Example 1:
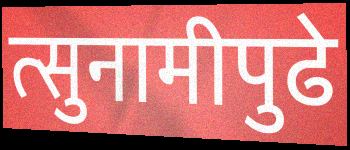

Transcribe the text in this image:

त्सुनामीपुढे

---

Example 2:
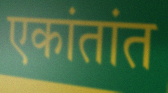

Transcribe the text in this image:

एकांतांत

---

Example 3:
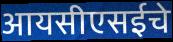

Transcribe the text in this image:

आयसीएसईचे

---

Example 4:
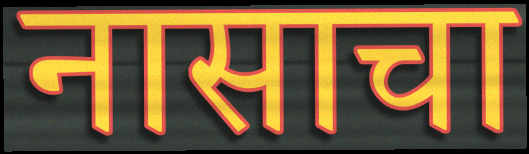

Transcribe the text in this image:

नासाचा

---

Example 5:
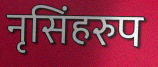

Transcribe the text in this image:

नृसिंहरुप